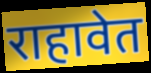
राहावेत